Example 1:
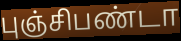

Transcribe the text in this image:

புஞ்சிபண்டா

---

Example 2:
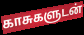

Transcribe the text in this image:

காசுகளுடன்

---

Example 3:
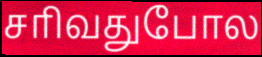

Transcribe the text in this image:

சரிவதுபோல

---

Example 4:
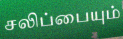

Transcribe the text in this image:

சலிப்பையும்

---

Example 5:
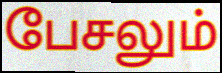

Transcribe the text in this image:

பேசலும்